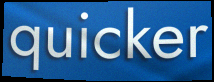
quicker